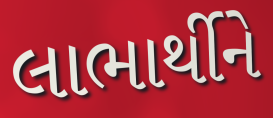
લાભાર્થીને